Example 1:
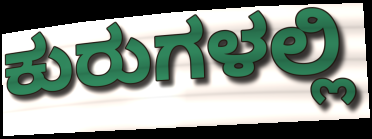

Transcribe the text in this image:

ಕುರುಗಳಲ್ಲಿ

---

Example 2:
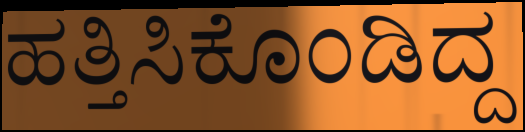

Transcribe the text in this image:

ಹತ್ತಿಸಿಕೊಂಡಿದ್ದ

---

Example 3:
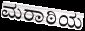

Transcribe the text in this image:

ಮರಾಠಿಯ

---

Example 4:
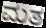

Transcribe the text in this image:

ಮತ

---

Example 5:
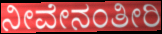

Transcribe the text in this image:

ನೀವೇನಂತೀರಿ